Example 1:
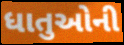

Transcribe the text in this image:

ધાતુઓની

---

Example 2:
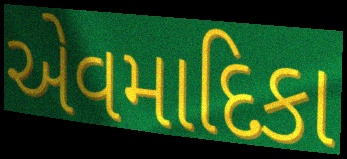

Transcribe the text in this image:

એવમાદિકા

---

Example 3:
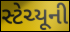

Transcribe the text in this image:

સ્ટેચ્યૂની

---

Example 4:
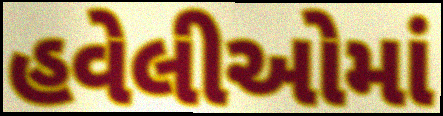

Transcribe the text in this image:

હવેલીઓમાં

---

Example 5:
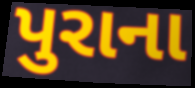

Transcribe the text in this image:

પુરાના